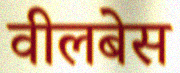
वीलबेस